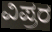
ವಿಪ್ರರ